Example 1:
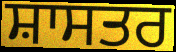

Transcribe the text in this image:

ਸ਼ਾਸਤਰ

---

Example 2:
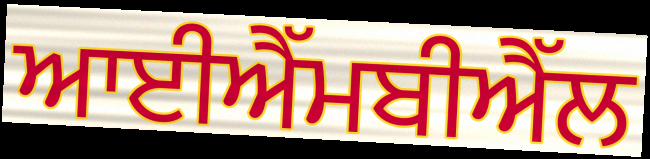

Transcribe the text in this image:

ਆਈਐੱਮਬੀਐੱਲ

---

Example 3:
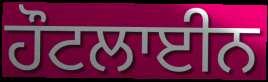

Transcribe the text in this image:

ਹੌਟਲਾਈਨ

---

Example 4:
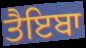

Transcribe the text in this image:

ਤੈਇਬਾ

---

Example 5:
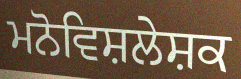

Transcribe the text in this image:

ਮਨੋਵਿਸ਼ਲੇਸ਼ਕ